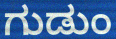
ಗುಡುಂ